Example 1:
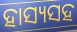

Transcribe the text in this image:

ହାସ୍ୟସହ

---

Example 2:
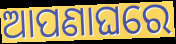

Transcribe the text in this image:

ଆପଣାଘରେ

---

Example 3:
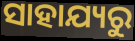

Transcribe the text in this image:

ସାହାଯ୍ୟରୁ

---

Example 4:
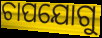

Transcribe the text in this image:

ଚାପଯୋଗୁ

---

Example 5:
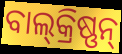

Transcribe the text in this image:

ବାଲ୍‍କ୍ରିଷ୍ଣନ୍